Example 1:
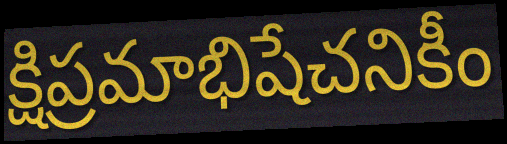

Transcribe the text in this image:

క్షిప్రమాభిషేచనికీం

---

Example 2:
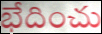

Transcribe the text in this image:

భేదించు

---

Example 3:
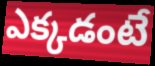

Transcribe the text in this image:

ఎక్కడంటే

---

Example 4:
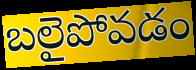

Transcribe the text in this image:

బలైపోవడం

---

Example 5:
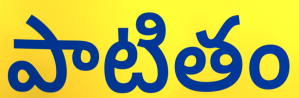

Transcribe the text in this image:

పాటితం